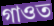
গাওত